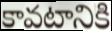
కావటానికి